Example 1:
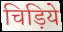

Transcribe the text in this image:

चिड़िये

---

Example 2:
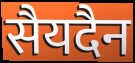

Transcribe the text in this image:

सैयदैन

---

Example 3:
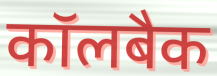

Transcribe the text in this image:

कॉलबैक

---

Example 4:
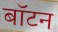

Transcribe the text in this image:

बॉटन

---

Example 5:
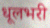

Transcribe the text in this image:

धूलभरी